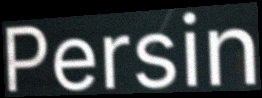
Persin